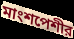
মাংশপেশীর